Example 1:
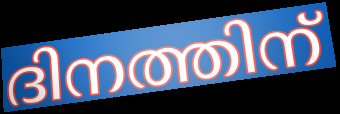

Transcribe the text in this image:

ദിനത്തിന്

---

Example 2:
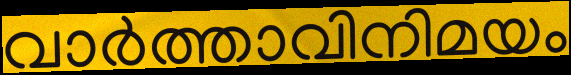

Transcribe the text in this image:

വാർത്താവിനിമയം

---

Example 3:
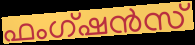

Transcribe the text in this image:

ഫംഗ്ഷൻസ്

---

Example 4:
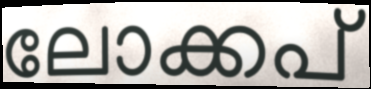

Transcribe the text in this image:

ലോക്കപ്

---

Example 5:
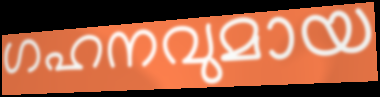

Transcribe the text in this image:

ഗഹനവുമായ